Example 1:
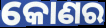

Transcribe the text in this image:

କୋଣର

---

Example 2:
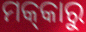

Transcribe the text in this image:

ମକ୍‌କାରୁ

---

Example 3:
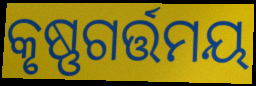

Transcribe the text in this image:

କୃଷ୍ଣଗର୍ତ୍ତମୟ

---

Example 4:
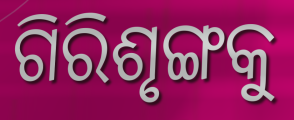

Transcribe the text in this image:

ଗିରିଶୃଙ୍ଗକୁ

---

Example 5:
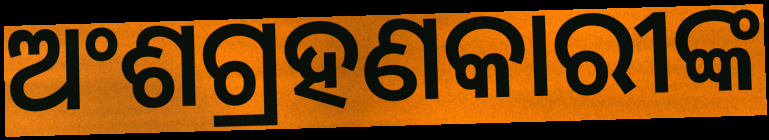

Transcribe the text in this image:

ଅଂଶଗ୍ରହଣକାରୀଙ୍କ